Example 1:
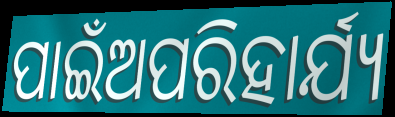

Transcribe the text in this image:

ପାଇଁଅପରିହାର୍ଯ୍ୟ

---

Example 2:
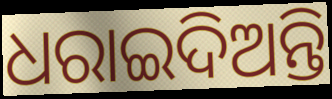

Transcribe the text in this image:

ଧରାଇଦିଅନ୍ତି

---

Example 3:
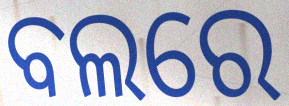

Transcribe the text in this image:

ବଲରେ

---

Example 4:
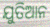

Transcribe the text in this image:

ଯୁତିଆନ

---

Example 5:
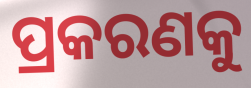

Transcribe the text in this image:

ପ୍ରକରଣକୁ